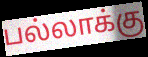
பல்லாக்கு